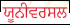
ਯੂਨੀਵਰਸਲ